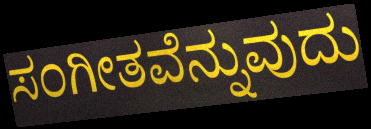
ಸಂಗೀತವೆನ್ನುವುದು